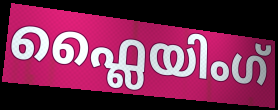
ഫ്ലൈയിംഗ്